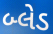
બ્લેડ